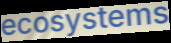
ecosystems